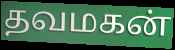
தவமகன்